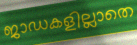
ജാഡകളില്ലാതെ